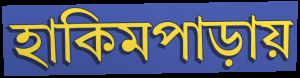
হাকিমপাড়ায়